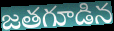
జతగూడిన